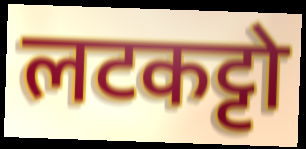
लटकट्टो